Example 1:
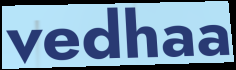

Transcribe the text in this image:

vedhaa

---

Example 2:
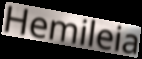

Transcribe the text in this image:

Hemileia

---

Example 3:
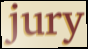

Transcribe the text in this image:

jury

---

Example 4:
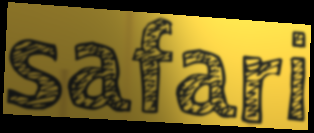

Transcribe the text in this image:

safari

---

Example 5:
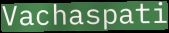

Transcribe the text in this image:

Vachaspati